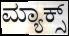
ಮ್ಯಾಕ್ಸ್